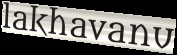
lakhavanu